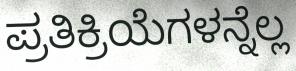
ಪ್ರತಿಕ್ರಿಯೆಗಳನ್ನೆಲ್ಲ